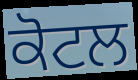
ਕੋਟਲ